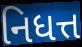
નિધત્ત